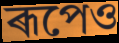
ৰূপেও